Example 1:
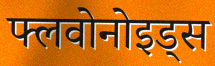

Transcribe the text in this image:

फ्लवोनोइड्स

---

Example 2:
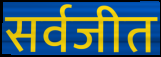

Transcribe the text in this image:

सर्वजीत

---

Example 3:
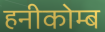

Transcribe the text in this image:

हनीकोम्ब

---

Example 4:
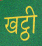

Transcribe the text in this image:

खट्ठी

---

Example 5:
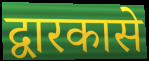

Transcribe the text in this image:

द्वारकासे